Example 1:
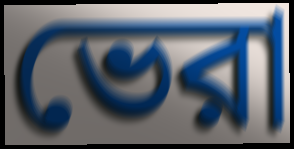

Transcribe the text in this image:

ভেরা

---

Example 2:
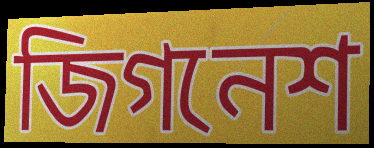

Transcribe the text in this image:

জিগনেশ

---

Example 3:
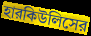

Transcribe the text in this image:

হারকিউলিসের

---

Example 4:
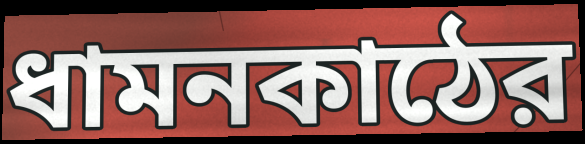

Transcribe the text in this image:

ধামনকাঠের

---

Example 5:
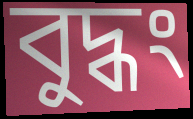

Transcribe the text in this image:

বুদ্ধং